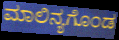
ಮಾಲಿನ್ಯಗೊಂಡ